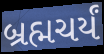
બ્રહ્મચર્યં